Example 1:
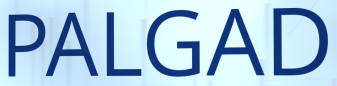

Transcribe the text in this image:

PALGAD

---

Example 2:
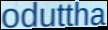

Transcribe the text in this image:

oduttha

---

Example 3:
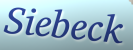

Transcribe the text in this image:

Siebeck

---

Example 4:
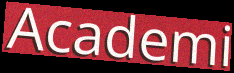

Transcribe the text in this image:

Academi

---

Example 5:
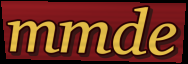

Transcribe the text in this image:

mmde